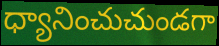
ధ్యానించుచుండగా